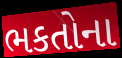
ભકતોના